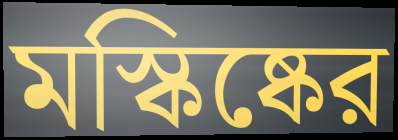
মস্কিষ্কের